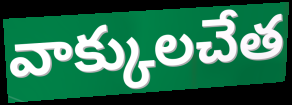
వాక్కులచేత